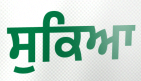
ਸੁਕਿਆ